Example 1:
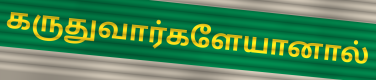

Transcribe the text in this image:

கருதுவார்களேயானால்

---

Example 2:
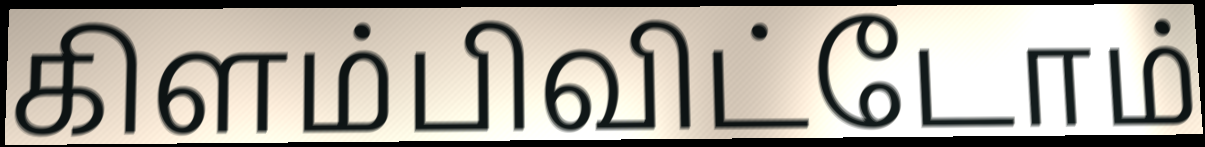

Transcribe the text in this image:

கிளம்பிவிட்டோம்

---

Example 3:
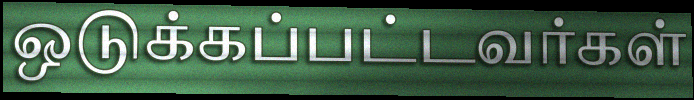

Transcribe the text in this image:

ஒடுக்கப்பட்டவர்கள்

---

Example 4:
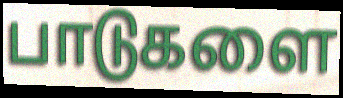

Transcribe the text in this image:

பாடுகளை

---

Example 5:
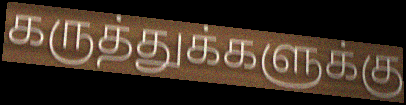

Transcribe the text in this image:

கருத்துக்களுக்கு